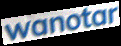
wanotar